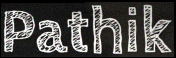
Pathik